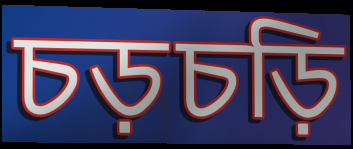
চড়চড়ি